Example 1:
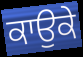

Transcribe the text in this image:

ਕਾਉਕੇ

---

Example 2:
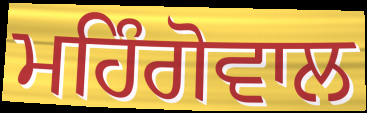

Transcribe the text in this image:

ਮਹਿੰਗੋਵਾਲ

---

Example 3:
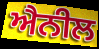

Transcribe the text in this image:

ਐਨੀਲ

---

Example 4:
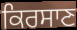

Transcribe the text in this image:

ਕਿਰਸਾਣ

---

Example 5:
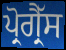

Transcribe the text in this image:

ਪ੍ਰੋਗ੍ਰੈੱਸ